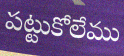
పట్టుకోలేము